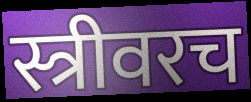
स्त्रीवरच